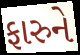
ફારુને